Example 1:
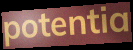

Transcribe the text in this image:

potentia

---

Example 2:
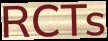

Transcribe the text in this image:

RCTs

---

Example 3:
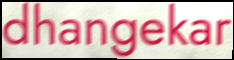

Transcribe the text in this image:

dhangekar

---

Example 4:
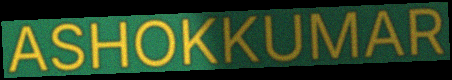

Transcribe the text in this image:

ASHOKKUMAR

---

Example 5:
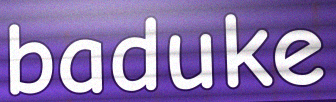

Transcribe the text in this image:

baduke